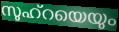
സുഹ്റയെയും